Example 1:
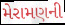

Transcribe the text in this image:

મેરામણની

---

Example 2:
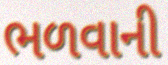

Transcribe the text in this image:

ભળવાની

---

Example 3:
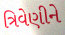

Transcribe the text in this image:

ત્રિવેણીને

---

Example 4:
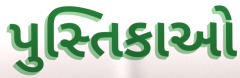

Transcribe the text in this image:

પુસ્તિકાઓ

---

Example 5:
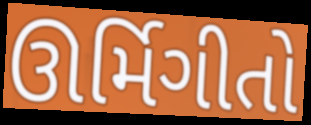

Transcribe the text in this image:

ઊર્મિગીતો